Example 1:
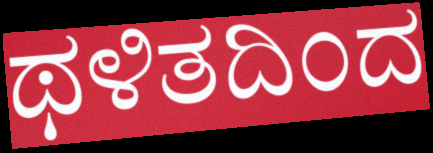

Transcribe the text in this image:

ಥಳಿತದಿಂದ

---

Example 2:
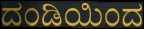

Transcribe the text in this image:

ದಂಡಿಯಿಂದ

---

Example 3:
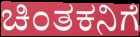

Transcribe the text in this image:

ಚಿಂತಕನಿಗೆ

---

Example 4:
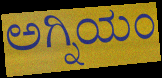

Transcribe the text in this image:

ಅಗ್ನಿಯಂ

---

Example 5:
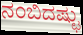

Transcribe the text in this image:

ನಂಬಿದಷ್ಟು